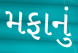
મફાનું